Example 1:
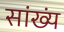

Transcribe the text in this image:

सांख्यं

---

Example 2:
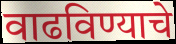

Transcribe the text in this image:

वाढविण्याचे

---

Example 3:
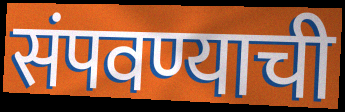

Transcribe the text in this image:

संपवण्याची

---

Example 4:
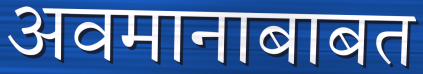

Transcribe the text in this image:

अवमानाबाबत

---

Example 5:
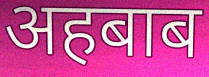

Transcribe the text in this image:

अहबाब